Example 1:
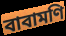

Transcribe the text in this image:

বাবামণি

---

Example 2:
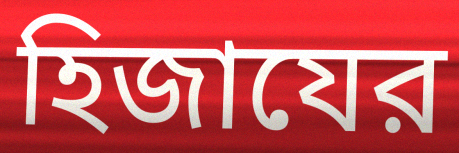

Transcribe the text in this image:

হিজাযের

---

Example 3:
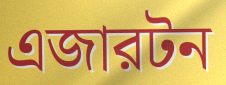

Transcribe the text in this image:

এজারটন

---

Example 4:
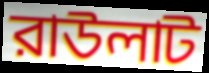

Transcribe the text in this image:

রাউলাট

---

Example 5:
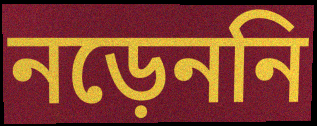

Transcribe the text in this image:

নড়েননি